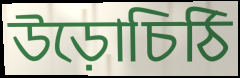
উড়োচিঠি